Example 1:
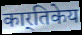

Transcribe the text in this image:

कार्तिकेय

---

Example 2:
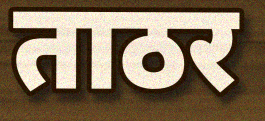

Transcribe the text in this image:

ताठर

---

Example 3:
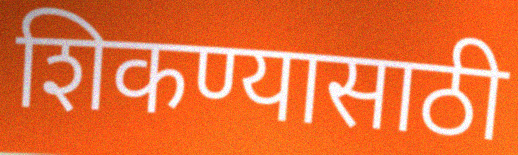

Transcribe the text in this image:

शिकण्यासाठी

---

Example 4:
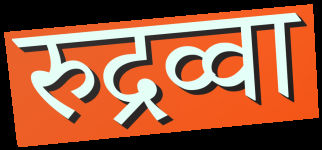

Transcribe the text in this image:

रुद्रव्वा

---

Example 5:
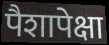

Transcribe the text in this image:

पैशापेक्षा